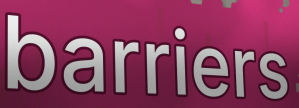
barriers